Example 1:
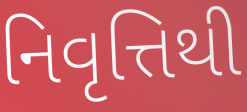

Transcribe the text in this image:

નિવૃત્તિથી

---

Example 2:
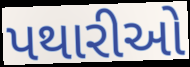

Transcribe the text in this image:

પથારીઓ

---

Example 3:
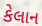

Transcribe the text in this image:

કેલાન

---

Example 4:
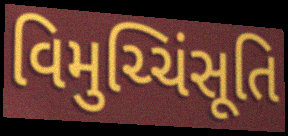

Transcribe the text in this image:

વિમુચ્ચિંસૂતિ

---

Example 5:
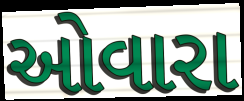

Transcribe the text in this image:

ઓવારા